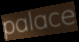
palace